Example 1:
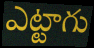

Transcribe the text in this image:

ఎట్టాగు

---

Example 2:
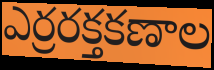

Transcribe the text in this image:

ఎర్రరక్తకణాల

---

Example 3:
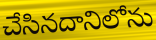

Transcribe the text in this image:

చేసినదానిలోను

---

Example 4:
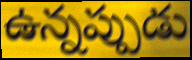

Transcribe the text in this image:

ఉన్నప్పుడు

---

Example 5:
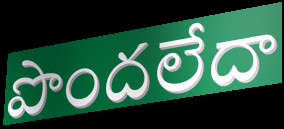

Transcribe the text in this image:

పొందలేదా